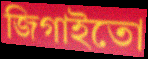
জিগাইতো